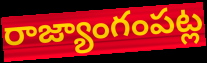
రాజ్యాంగంపట్ల